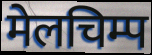
मेलचिम्प